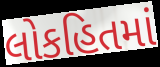
લોકહિતમાં